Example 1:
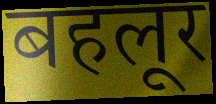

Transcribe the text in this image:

बहलूर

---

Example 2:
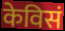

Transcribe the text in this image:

केविसं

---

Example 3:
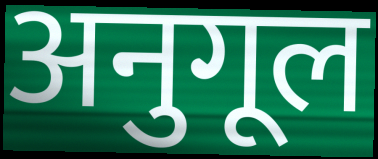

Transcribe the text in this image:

अनुगूल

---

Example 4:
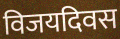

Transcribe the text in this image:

विजयदिवस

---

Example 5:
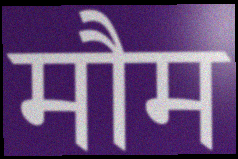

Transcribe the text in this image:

मौम